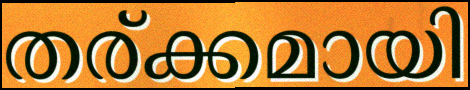
തര്ക്കമായി